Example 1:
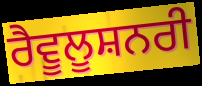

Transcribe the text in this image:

ਰੈਵੂਲੂਸ਼ਨਰੀ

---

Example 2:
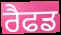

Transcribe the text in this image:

ਰੈਫਡ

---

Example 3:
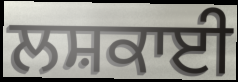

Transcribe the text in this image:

ਲਸ਼ਕਾਈ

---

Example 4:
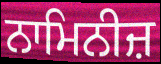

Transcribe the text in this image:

ਨਾਮਿਨੀਜ਼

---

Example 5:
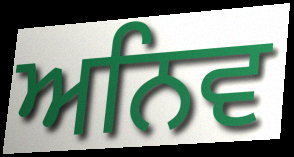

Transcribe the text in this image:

ਅਨਿਵ